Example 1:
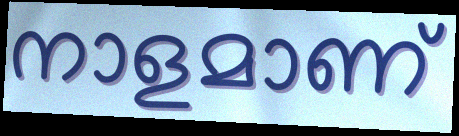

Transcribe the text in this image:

നാളമാണ്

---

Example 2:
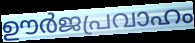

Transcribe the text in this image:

ഊർജപ്രവാഹം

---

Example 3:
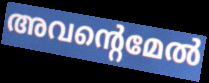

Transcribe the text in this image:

അവന്റെമേൽ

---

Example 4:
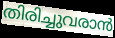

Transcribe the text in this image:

തിരിച്ചുവരാൻ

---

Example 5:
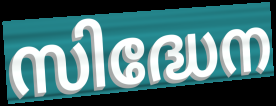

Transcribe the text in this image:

സിദ്ധേന